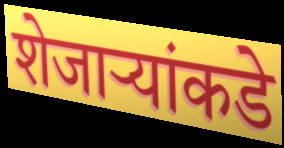
शेजाऱ्यांकडे